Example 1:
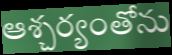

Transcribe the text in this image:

ఆశ్చర్యంతోను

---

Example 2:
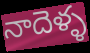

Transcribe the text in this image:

నాదెళ్ళ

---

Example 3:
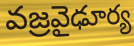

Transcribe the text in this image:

వజ్రవైఢూర్య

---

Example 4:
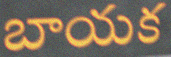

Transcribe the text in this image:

బాయక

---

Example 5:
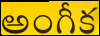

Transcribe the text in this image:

అంగీక